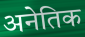
अनेतिक